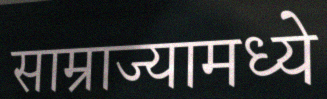
साम्राज्यामध्ये